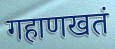
गहाणखतं